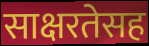
साक्षरतेसह